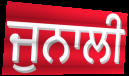
ਜੁਨਾਲੀ